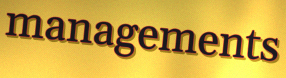
managements